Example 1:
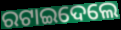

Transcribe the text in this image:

ରଟାଇଦେଲେ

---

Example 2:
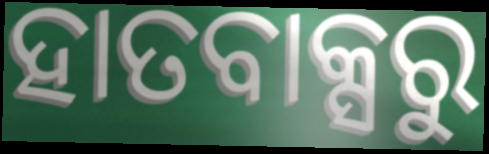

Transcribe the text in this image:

ହାତବାକ୍ସରୁ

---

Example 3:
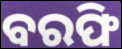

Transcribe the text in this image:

ବରଫି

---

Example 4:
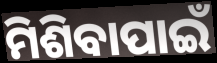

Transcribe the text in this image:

ମିଶିବାପାଇଁ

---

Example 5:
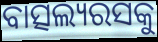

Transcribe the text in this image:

ବାତ୍ସଲ୍ୟରସକୁ